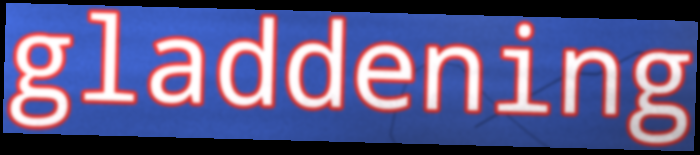
gladdening